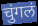
चुंगलं